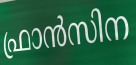
ഫ്രാൻസിന